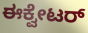
ಈಕ್ವೇಟರ್